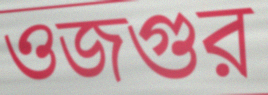
ওজগুর